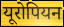
यूरोपियन